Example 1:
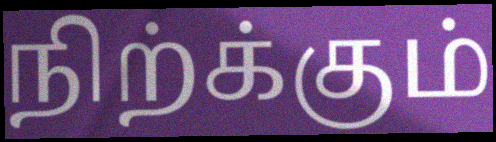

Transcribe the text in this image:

நிற்க்கும்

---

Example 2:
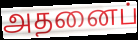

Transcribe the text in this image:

அதனைப்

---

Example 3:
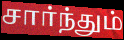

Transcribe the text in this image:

சார்ந்தும்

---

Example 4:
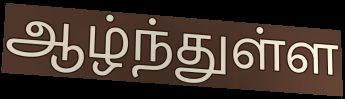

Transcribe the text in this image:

ஆழ்ந்துள்ள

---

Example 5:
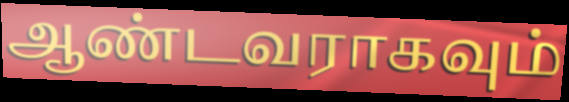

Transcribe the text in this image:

ஆண்டவராகவும்